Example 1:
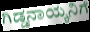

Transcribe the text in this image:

ಗಿಡ್ಡನಾಯ್ಕನಿಗೆ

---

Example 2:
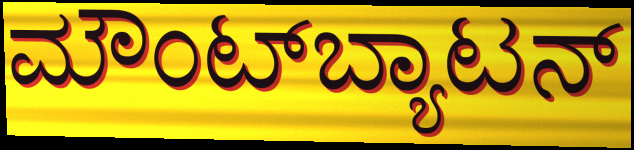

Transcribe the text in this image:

ಮೌಂಟ್‌ಬ್ಯಾಟನ್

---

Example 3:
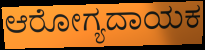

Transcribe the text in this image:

ಆರೋಗ್ಯದಾಯಕ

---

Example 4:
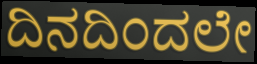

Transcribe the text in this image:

ದಿನದಿಂದಲೇ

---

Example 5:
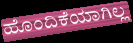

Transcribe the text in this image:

ಹೊಂದಿಕೆಯಾಗಿಲ್ಲ